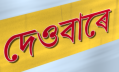
দেওবাৰে